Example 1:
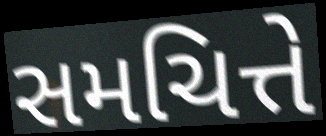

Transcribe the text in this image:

સમચિત્તે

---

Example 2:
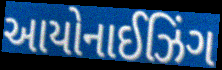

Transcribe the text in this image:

આયોનાઈઝિંગ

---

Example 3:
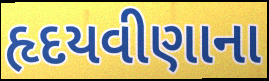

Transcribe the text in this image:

હૃદયવીણાના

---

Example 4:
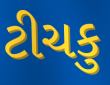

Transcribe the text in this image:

ટીચકુ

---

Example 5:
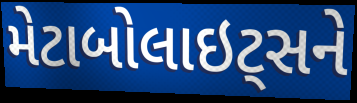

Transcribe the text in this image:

મેટાબોલાઇટ્સને